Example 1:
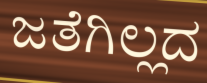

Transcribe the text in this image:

ಜತೆಗಿಲ್ಲದ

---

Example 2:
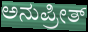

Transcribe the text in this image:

ಅನುಪ್ರೀತ್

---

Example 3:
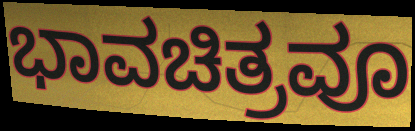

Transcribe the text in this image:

ಭಾವಚಿತ್ರವೂ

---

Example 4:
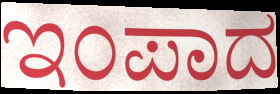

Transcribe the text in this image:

ಇಂಪಾದ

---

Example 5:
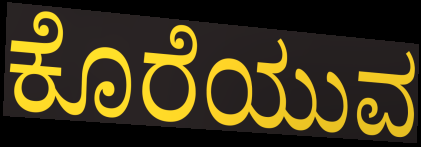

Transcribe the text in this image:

ಕೊರೆಯುವ